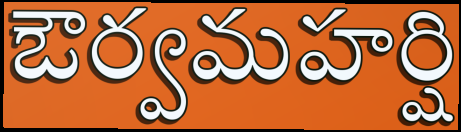
ఔర్వమహర్షి